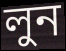
লুন